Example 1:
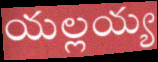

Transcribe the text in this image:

యల్లయ్య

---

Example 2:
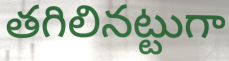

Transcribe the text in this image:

తగిలినట్టుగా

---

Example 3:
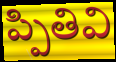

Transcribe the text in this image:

ప్పితివి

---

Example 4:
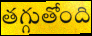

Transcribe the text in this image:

తగ్గుతోంది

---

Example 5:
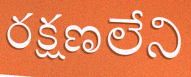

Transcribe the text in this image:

రక్షణలేని